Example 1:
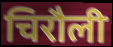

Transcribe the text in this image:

चिरौली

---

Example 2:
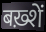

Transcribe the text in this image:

बख़्शें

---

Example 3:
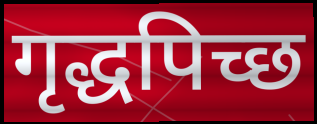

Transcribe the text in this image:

गृद्धपिच्छ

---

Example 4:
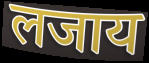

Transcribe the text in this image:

लजाय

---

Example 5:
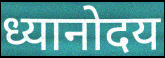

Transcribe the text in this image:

ध्यानोदय